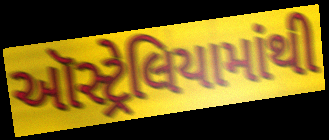
ઑસ્ટ્રેલિયામાંથી